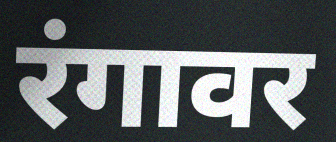
रंगावर